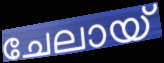
ചേലായ്